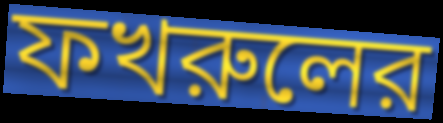
ফখরুলের